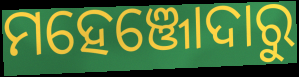
ମହେଞ୍ଜୋଦାରୁ